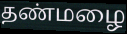
தண்மழை